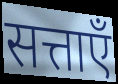
सत्ताएँ